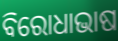
ବିରୋଧାଭାଷ